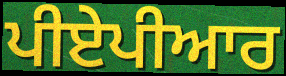
ਪੀਏਪੀਆਰ